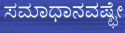
ಸಮಾಧಾನವಷ್ಟೇ